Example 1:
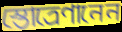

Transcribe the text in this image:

স্তোত্রেণানেন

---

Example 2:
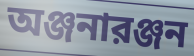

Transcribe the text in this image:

অঞ্জনারঞ্জন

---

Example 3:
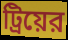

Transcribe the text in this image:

ট্রিয়ের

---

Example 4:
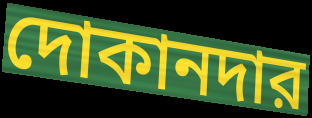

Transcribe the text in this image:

দোকানদার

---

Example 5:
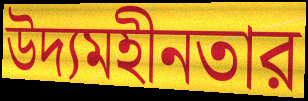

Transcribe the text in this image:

উদ্যমহীনতার